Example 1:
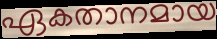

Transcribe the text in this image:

ഏകതാനമായ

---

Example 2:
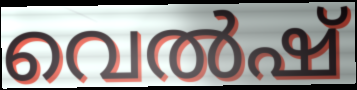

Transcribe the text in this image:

വെൽഷ്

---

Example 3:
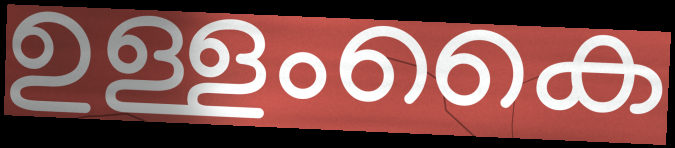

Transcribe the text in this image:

ഉള്ളംകൈ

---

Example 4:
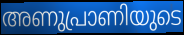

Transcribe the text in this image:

അണുപ്രാണിയുടെ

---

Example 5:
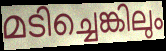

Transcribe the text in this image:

മടിച്ചെങ്കിലും